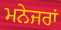
ਮਨੇਜਰਾਂ